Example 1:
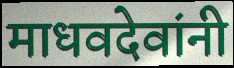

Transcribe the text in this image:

माधवदेवांनी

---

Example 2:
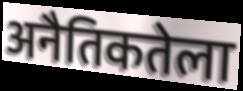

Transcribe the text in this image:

अनैतिकतेला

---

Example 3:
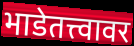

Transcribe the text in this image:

भाडेतत्त्वावर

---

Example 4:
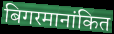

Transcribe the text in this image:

बिगरमानांकित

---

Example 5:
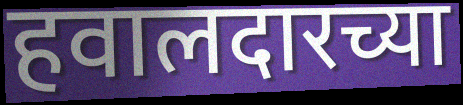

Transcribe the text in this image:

हवालदारच्या